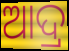
ଆଦ୍ର